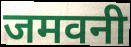
जमवनी